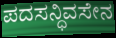
ಪದಸನ್ಧಿವಸೇನ